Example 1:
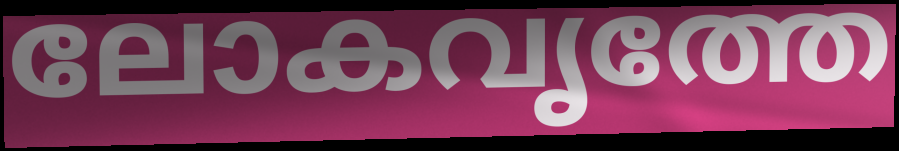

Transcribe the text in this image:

ലോകവൃത്തേ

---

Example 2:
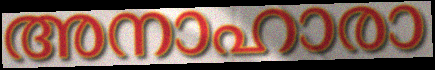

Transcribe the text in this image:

അനാഹാരാ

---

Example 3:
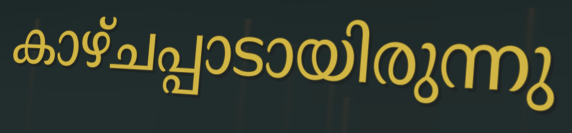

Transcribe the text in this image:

കാഴ്ചപ്പാടായിരുന്നു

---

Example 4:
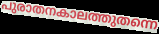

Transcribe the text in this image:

പുരാതനകാലത്തുതന്നെ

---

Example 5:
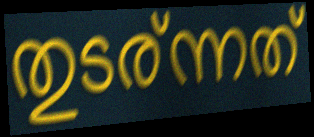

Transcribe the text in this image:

തുടര്ന്നത്